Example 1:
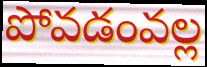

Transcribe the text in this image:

పోవడంవల్ల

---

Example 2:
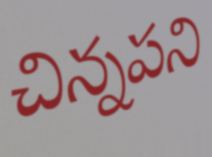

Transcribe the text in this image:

చిన్నపని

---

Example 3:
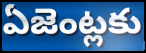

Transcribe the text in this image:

ఏజెంట్లకు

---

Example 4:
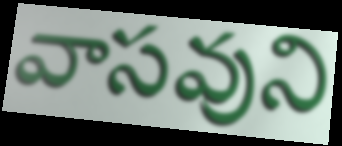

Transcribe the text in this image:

వాసవుని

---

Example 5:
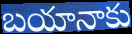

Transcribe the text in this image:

బయానాకు